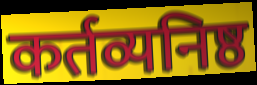
कर्तव्यनिष्ठ